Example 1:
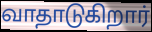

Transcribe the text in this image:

வாதாடுகிறார்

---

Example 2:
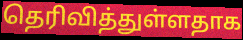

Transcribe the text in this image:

தெரிவித்துள்ளதாக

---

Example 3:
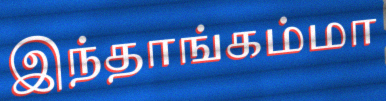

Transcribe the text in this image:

இந்தாங்கம்மா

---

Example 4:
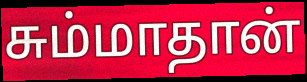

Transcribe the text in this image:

சும்மாதான்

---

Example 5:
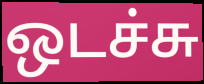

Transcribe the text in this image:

ஒடச்சு